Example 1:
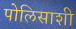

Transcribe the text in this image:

पोलिसाशी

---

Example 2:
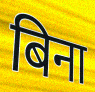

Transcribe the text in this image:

बिना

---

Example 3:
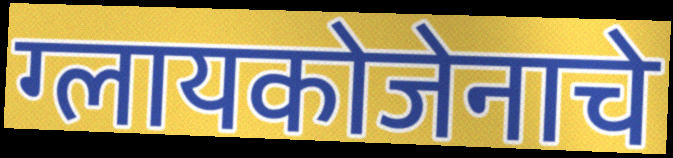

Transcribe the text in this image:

ग्लायकोजेनाचे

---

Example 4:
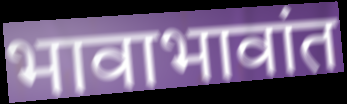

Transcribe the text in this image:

भावाभावांत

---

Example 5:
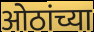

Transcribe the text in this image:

ओठांच्या